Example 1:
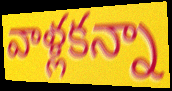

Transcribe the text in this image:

వాళ్లకన్నా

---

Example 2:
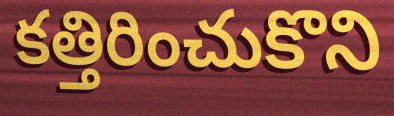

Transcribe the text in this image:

కత్తిరించుకొని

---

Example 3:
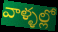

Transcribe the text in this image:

వాళ్ళల్లో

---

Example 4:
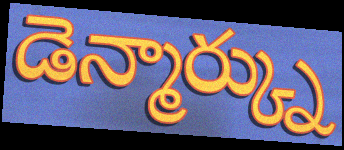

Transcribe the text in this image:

డెన్మార్క్ను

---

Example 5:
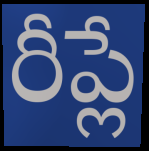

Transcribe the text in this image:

రీప్లే